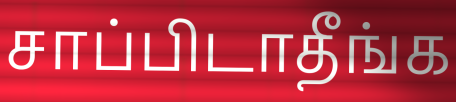
சாப்பிடாதீங்க